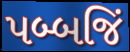
પબ્બજિં